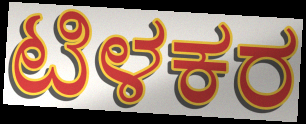
ಟಿಳಕರ